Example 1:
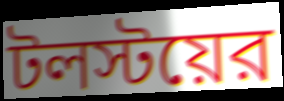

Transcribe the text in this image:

টলস্টয়ের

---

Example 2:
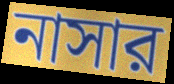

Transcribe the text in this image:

নাসার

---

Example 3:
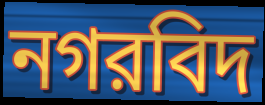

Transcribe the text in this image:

নগরবিদ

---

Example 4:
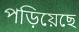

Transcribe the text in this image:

পড়িয়েছে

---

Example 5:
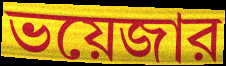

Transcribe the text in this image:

ভয়েজার